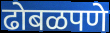
ढोबळपणे